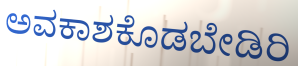
ಅವಕಾಶಕೊಡಬೇಡಿರಿ